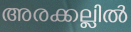
അരക്കല്ലിൽ